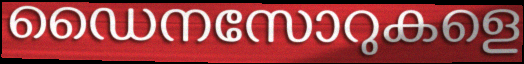
ഡൈനസോറുകളെ